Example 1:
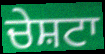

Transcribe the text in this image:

ਚੇਸ਼ਟਾ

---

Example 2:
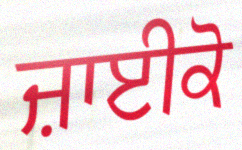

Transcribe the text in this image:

ਜ਼ਾਈਕੋ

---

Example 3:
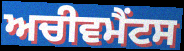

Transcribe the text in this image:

ਅਚੀਵਮੈਂਟਸ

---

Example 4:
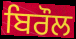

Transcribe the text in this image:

ਬਿਰੌਲ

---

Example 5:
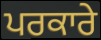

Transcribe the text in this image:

ਪਰਕਾਰੇ